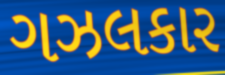
ગઝલકાર